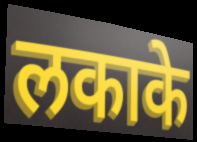
लकाके